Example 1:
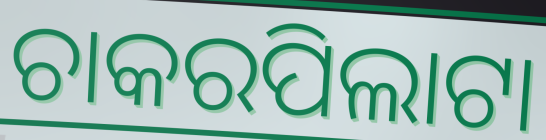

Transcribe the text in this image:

ଚାକରପିଲାଟା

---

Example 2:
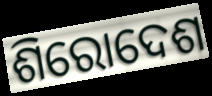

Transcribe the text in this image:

ଶିରୋଦେଶ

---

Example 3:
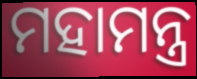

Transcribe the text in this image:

ମହାମନ୍ତ୍ର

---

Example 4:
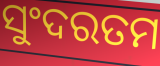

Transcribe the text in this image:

ସୁଂଦରତମ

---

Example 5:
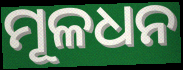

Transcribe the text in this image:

ମୂଳଧନ